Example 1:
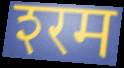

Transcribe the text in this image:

श्रम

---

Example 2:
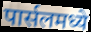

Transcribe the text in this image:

पार्सलमध्ये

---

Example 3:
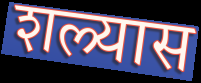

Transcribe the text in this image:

शल्यास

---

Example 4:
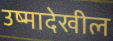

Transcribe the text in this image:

उष्मादेखील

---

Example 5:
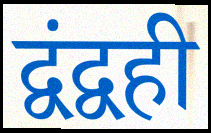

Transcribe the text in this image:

द्वंद्वही